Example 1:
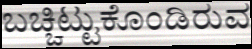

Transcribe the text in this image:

ಬಚ್ಚಿಟ್ಟುಕೊಂಡಿರುವ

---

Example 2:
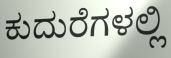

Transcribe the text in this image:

ಕುದುರೆಗಳಲ್ಲಿ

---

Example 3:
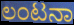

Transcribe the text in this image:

ಲಂಟನಾ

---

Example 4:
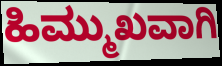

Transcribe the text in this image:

ಹಿಮ್ಮುಖವಾಗಿ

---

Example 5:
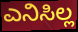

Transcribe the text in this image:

ಎನಿಸಿಲ್ಲ